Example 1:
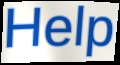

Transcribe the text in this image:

Help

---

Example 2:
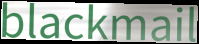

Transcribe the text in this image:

blackmail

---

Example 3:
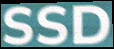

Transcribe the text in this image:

SSD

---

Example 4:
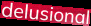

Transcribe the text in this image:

delusional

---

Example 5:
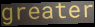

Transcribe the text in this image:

greater